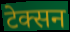
टेक्सन